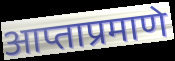
आप्ताप्रमाणे